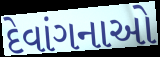
દેવાંગનાઓ